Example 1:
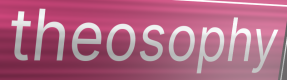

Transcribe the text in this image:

theosophy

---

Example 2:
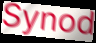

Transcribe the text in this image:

Synod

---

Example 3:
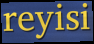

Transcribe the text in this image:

reyisi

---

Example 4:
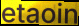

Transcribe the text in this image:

etaoin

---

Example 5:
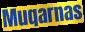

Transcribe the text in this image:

Muqarnas